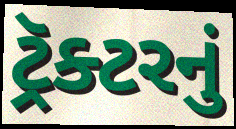
ટ્રૅક્ટરનું